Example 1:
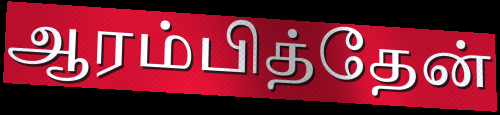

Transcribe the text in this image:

ஆரம்பித்தேன்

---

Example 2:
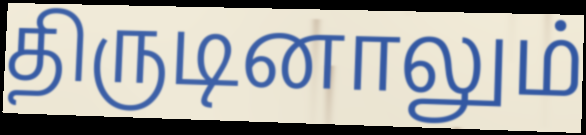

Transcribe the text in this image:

திருடினாலும்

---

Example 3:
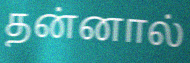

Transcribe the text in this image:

தன்னால்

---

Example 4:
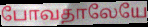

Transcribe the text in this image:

போவதாலேயே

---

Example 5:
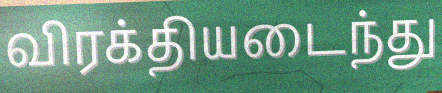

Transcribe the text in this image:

விரக்தியடைந்து